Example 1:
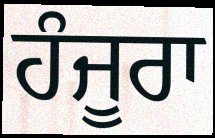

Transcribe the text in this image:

ਹੰਜੂਰਾ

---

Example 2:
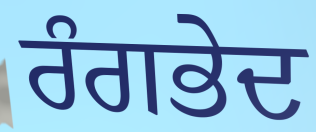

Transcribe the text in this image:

ਰੰਗਭੇਦ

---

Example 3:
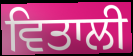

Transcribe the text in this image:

ਵਿਤਾਲੀ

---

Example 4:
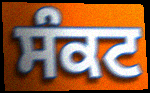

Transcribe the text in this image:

ਸੰਕਟ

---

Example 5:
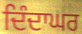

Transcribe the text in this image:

ਦਿੰਦਾਘਰ